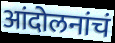
आंदोलनांचं